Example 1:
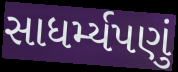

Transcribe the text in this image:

સાધર્મ્યપણું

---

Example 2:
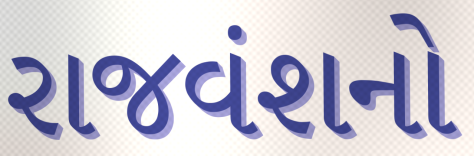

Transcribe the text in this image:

રાજવંશનો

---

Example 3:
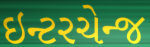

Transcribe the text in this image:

ઇન્ટરચેન્જ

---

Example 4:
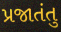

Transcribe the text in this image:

પ્રજાતંતુ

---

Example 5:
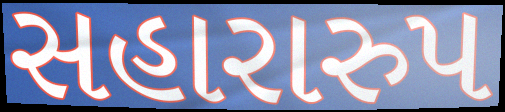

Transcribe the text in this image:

સહારારુપ